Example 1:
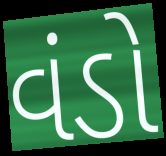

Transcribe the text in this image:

વંડો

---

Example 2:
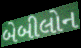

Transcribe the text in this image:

બેબીલોન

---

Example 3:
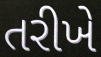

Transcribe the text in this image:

તરીખે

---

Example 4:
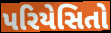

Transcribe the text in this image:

પરિયેસિતો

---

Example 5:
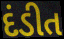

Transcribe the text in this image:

દંડીત